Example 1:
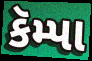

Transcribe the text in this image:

કૅમ્પા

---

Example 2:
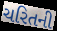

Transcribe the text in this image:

ચરિતની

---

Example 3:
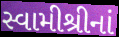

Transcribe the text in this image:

સ્વામીશ્રીનાં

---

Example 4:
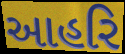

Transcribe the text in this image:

આહરિ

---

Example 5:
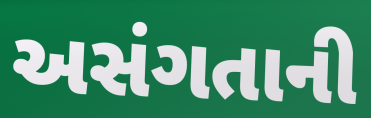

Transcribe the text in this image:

અસંગતાની